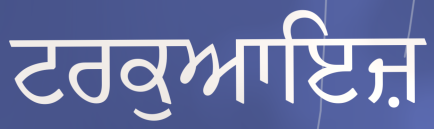
ਟਰਕੁਆਇਜ਼